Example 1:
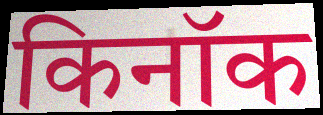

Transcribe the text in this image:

किनॉक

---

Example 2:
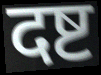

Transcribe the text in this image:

दष्ट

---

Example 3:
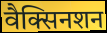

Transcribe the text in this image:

वैक्सिनशन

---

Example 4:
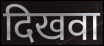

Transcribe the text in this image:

दिखवा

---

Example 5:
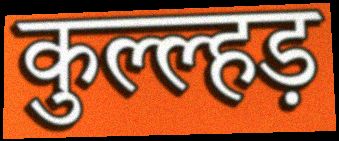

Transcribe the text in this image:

कुल्ल्हड़